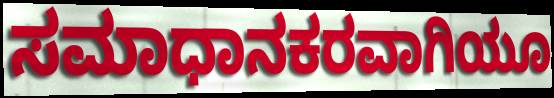
ಸಮಾಧಾನಕರವಾಗಿಯೂ